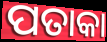
ପତାକା